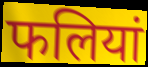
फलियां